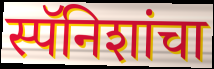
स्पॅनिशांचा